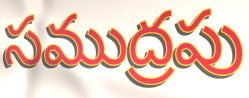
సముద్రపు